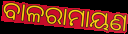
ବାଳରାମାୟଣ